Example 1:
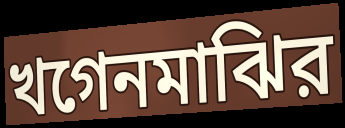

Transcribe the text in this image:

খগেনমাঝির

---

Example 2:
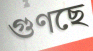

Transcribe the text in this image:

গুণছে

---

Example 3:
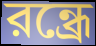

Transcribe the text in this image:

রন্ধ্রে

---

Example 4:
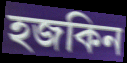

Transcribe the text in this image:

হজকিন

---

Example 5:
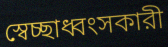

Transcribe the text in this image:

স্বেচ্ছাধ্বংসকারী